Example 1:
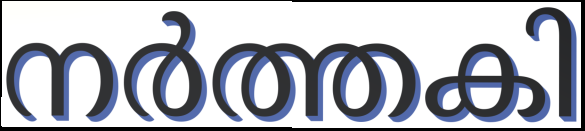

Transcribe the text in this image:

നർത്തകി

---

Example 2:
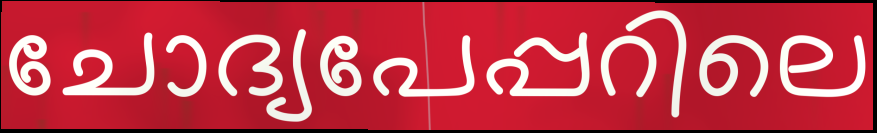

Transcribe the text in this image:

ചോദ്യപേപ്പറിലെ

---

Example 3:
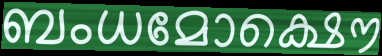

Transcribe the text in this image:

ബംധമോക്ഷൌ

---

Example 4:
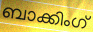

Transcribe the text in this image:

ബാക്കിംഗ്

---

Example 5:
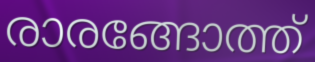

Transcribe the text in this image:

രാരങ്ങോത്ത്